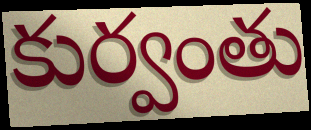
కుర్వంతు